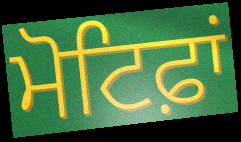
ਮੋਟਿਫ਼ਾਂ